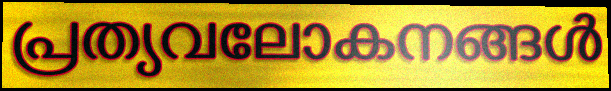
പ്രത്യവലോകനങ്ങൾ